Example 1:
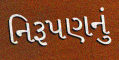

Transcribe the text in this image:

નિરૂપણનું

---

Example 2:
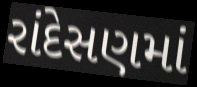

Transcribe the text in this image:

રાંદેસણમાં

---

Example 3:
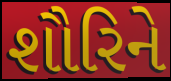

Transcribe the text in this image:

શૌરિને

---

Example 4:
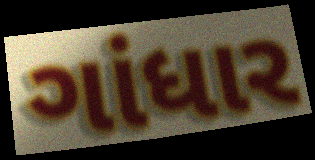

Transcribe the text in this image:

ગાંધાર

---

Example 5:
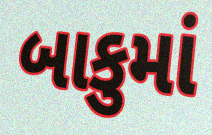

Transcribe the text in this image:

બાકુમાં